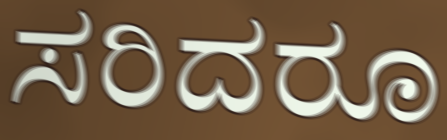
ಸರಿದರೂ